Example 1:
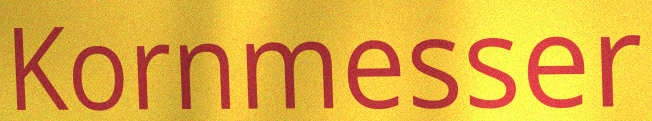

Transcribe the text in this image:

Kornmesser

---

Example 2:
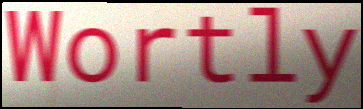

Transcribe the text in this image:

Wortly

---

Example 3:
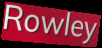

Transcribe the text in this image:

Rowley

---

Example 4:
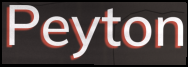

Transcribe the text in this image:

Peyton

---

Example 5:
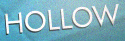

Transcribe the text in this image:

HOLLOW